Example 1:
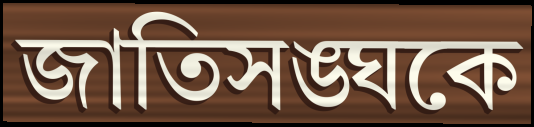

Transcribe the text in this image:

জাতিসঙ্ঘকে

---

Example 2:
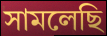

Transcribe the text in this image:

সামলেছি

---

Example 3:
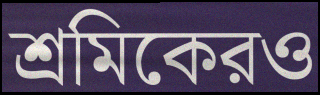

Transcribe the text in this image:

শ্রমিকেরও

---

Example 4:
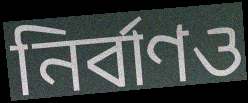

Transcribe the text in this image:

নির্বাণও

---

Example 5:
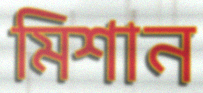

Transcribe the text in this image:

মিশান